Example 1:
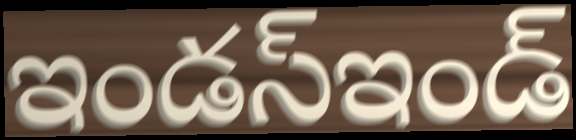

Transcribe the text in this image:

ఇండస్ఇండ్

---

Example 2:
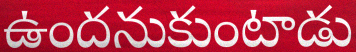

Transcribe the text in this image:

ఉందనుకుంటాడు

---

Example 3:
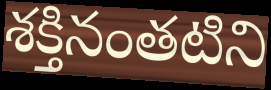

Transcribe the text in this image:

శక్తినంతటిని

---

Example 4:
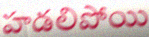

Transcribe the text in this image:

హడలిపోయి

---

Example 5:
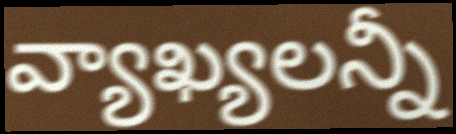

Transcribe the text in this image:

వ్యాఖ్యలన్నీ